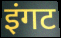
इंगट